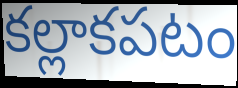
కల్లాకపటం